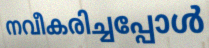
നവീകരിച്ചപ്പോൾ